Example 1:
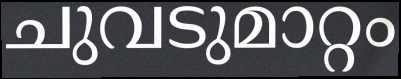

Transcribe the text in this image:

ചുവടുമാറ്റം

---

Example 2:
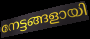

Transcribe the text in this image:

നേട്ടങ്ങളായി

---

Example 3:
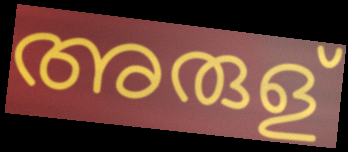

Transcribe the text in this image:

അരുള്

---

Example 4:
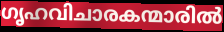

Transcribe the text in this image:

ഗൃഹവിചാരകന്മാരിൽ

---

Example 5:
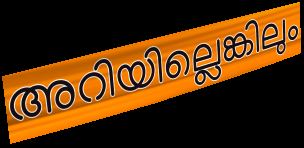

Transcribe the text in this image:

അറിയില്ലെങ്കിലും